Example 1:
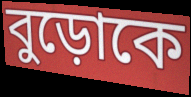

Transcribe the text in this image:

বুড়োকে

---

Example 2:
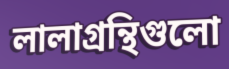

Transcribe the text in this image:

লালাগ্রন্থিগুলো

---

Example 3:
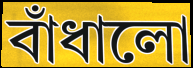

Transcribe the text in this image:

বাঁধালো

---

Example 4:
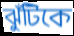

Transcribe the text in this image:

ঝুঁটিকে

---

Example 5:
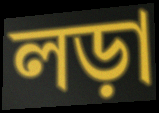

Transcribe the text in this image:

লড়া